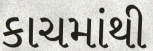
કાચમાંથી